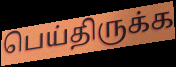
பெய்திருக்க